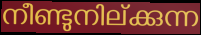
നീണ്ടുനില്ക്കുന്ന